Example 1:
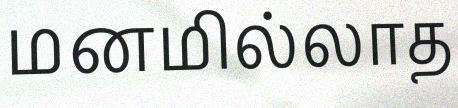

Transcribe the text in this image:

மனமில்லாத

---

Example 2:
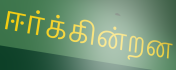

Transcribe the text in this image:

ஈர்க்கின்றன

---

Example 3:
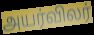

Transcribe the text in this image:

அயர்விலர்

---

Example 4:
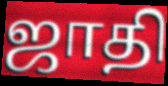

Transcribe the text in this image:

ஜாதி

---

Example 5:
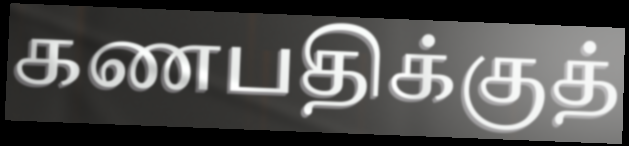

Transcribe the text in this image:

கணபதிக்குத்